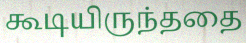
கூடியிருந்ததை